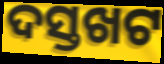
ଦସ୍ତଖଟ